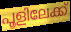
പൂളിലേക്ക്